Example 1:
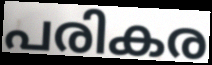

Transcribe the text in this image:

പരികര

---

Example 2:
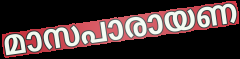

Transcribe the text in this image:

മാസപാരായണ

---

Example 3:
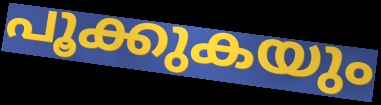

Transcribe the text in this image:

പൂക്കുകയും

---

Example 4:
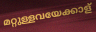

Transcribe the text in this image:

മറ്റുള്ളവയേക്കാള്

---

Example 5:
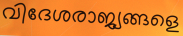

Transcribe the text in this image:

വിദേശരാജ്യങ്ങളെ